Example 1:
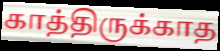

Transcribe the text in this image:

காத்திருக்காத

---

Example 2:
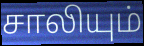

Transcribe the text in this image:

சாலியும்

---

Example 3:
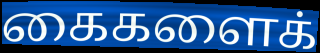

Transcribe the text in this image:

கைகளைக்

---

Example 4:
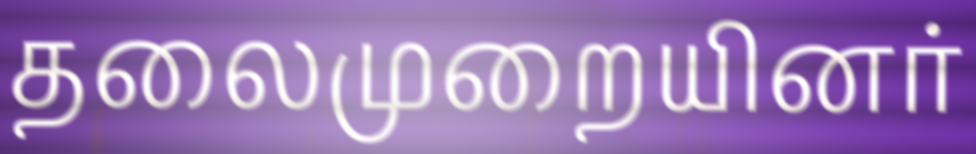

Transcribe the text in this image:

தலைமுறையினர்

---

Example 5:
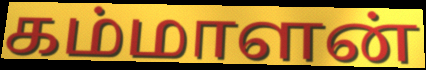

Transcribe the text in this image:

கம்மாளன்